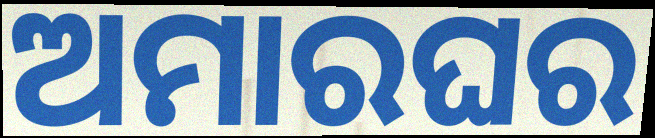
ଅମାରଘର